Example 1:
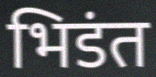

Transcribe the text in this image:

भिडंत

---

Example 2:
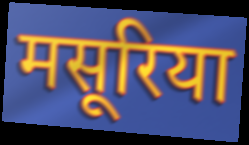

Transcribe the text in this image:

मसूरिया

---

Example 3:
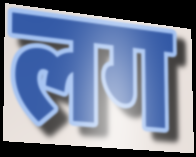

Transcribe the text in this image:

लग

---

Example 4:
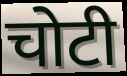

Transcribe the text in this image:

चोटी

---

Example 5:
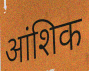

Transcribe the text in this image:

आंशिक